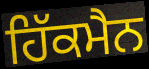
ਹਿੱਕਮੈਨ